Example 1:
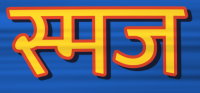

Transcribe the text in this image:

स्मज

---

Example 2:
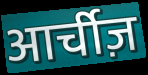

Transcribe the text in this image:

आर्चीज़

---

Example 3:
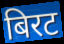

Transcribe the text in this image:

बिरट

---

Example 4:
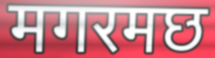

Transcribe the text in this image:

मगरमछ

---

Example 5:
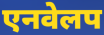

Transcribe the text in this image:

एनवेलप